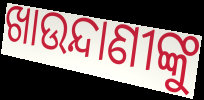
ଖାଉନ୍ଦାଣୀଙ୍କୁ